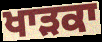
ਖਾੜਕਾ